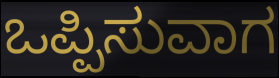
ಒಪ್ಪಿಸುವಾಗ